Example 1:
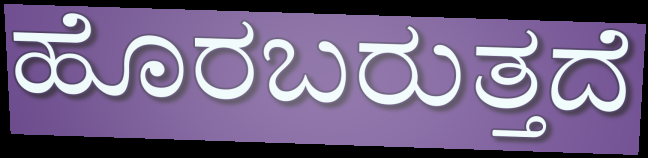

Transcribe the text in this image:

ಹೊರಬರುತ್ತದೆ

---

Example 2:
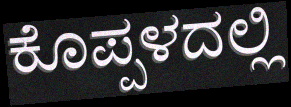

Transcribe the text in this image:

ಕೊಪ್ಪಳದಲ್ಲಿ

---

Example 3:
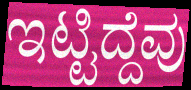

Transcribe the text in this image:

ಇಟ್ಟಿದ್ದೆವು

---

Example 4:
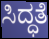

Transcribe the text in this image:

ಸಿದ್ಧತೆ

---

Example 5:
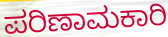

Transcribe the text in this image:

ಪರಿಣಾಮಕಾರಿ